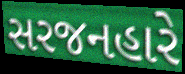
સરજનહારે